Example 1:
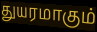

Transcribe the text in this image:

துயரமாகும்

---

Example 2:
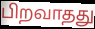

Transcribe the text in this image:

பிறவாதது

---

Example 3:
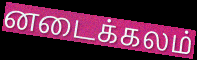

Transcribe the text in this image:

னடைக்கலம்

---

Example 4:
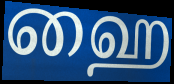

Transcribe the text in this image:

ஹை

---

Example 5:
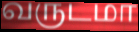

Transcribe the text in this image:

வருடமா